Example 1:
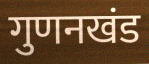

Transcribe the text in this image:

गुणनखंड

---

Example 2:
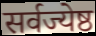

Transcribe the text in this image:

सर्वज्येष्ठ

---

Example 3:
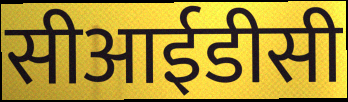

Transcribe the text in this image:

सीआईडीसी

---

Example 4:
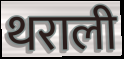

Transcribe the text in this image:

थराली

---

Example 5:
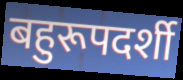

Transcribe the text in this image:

बहुरूपदर्शी